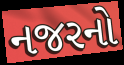
નજરનો